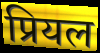
प्रियल